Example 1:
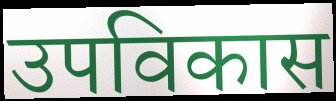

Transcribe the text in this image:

उपविकास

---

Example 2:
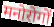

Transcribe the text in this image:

मनोरोगों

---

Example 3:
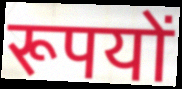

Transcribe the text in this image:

रूपयों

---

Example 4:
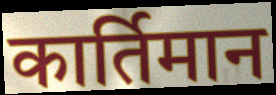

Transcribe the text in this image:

कार्तिमान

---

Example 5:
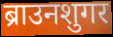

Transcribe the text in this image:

ब्राउनशुगर